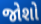
જોશો